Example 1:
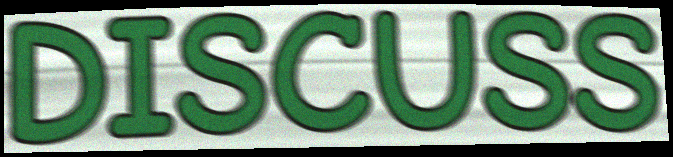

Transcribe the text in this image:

DISCUSS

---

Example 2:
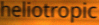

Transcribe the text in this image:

heliotropic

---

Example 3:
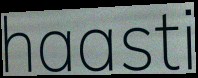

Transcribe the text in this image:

haasti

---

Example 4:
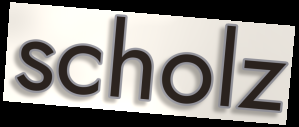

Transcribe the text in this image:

scholz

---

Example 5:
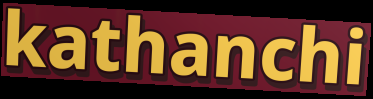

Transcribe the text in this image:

kathanchi